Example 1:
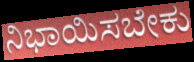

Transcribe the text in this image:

ನಿಭಾಯಿಸಬೇಕು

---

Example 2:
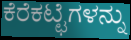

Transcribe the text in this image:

ಕೆರೆಕಟ್ಟೆಗಳನ್ನು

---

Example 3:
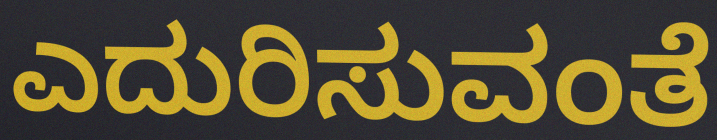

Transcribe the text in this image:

ಎದುರಿಸುವಂತೆ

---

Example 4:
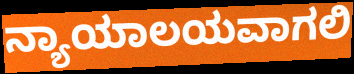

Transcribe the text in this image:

ನ್ಯಾಯಾಲಯವಾಗಲಿ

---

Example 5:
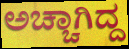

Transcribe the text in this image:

ಅಚ್ಚಾಗಿದ್ದ